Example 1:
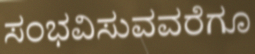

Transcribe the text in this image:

ಸಂಭವಿಸುವವರೆಗೂ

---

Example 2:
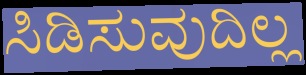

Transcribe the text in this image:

ಸಿಡಿಸುವುದಿಲ್ಲ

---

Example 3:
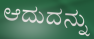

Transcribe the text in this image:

ಆದುದನ್ನು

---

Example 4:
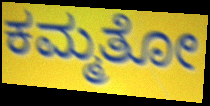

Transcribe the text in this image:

ಕಮ್ಮತೋ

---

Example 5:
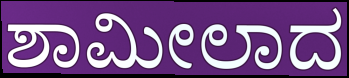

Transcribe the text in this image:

ಶಾಮೀಲಾದ